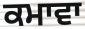
ਕਮਾਵਾ